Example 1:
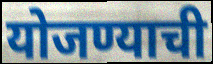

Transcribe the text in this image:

योजण्याची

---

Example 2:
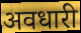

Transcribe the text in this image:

अवधारी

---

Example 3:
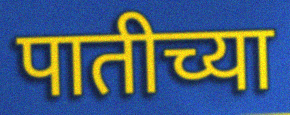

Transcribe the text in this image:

पातीच्या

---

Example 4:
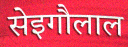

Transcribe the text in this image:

सेइगौलाल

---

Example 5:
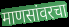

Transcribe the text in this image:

माणसांवरचा